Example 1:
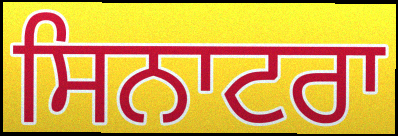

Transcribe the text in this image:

ਸਿਨਾਟਰਾ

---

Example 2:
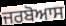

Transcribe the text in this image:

ਜਰਬੋਆਸ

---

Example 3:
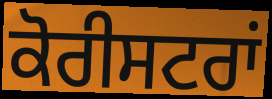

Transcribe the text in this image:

ਕੋਰੀਸਟਰਾਂ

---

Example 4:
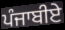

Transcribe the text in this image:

ਪੰਜਾਬੀਏ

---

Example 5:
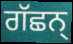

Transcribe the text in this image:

ਗੱਛਨ੍